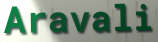
Aravali